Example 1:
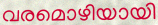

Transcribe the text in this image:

വരമൊഴിയായി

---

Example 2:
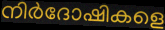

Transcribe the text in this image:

നിർദോഷികളെ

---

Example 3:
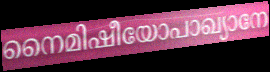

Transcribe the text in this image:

നൈമിഷീയോപാഖ്യാനേ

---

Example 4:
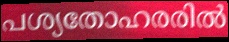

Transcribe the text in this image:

പശ്യതോഹരരിൽ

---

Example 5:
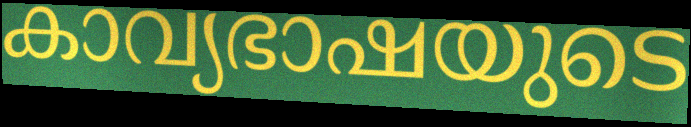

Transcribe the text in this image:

കാവ്യഭാഷയുടെ